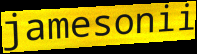
jamesonii